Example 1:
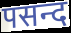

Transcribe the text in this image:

पसन्द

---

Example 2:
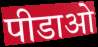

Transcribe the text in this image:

पीडाओ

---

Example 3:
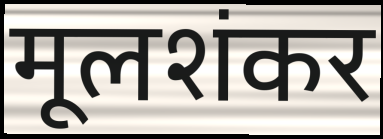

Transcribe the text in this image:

मूलशंकर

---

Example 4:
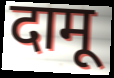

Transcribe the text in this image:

दामू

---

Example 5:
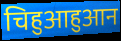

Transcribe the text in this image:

चिहुआहुआन